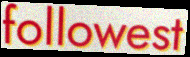
followest